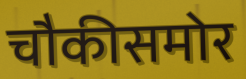
चौकीसमोर